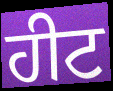
ਹੀਟ